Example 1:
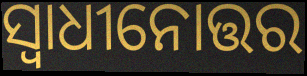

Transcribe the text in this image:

ସ୍ୱାଧୀନୋତ୍ତର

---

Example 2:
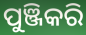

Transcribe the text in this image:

ପୁଞ୍ଜିକରି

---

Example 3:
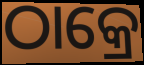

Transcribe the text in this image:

ଠାକ୍ରେ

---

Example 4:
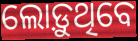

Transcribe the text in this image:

ଲୋଡ଼ୁଥିବେ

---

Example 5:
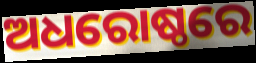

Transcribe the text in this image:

ଅଧରୋଷ୍ଠରେ